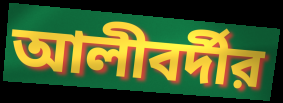
আলীবর্দীর